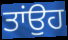
ਤਾਂਉਹ